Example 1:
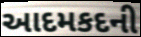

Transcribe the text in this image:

આદમકદની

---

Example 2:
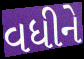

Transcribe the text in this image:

વધીને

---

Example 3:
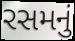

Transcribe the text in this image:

રસમનું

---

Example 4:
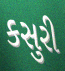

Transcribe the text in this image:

કસુરી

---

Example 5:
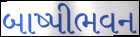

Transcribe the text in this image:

બાષ્પીભવન